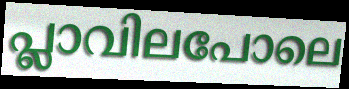
പ്ലാവിലപോലെ